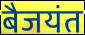
बैजयंत